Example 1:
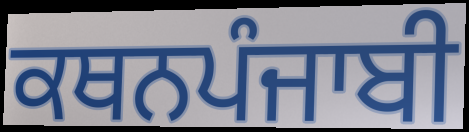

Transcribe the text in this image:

ਕਥਨਪੰਜਾਬੀ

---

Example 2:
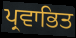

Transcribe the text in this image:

ਪ੍ਰਵਾਭਿਤ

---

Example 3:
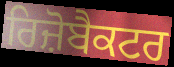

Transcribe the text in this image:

ਰਿਜ਼ੋਬੈਕਟਰ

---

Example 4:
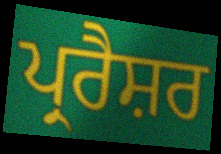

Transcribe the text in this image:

ਪ੍ਰਰੈਸ਼ਰ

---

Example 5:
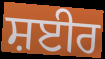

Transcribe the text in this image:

ਸ਼ਈਰ